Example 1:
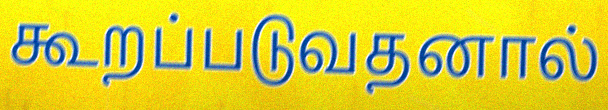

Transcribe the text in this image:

கூறப்படுவதனால்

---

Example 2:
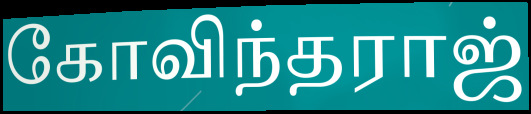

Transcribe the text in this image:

கோவிந்தராஜ்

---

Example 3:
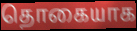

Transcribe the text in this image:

தொகையாக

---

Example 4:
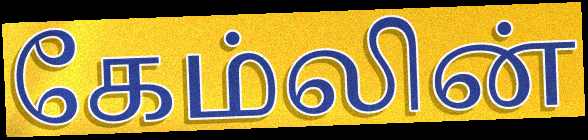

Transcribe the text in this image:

கேம்லின்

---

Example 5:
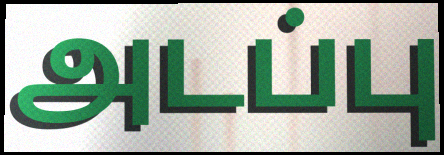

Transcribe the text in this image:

அடப்பு